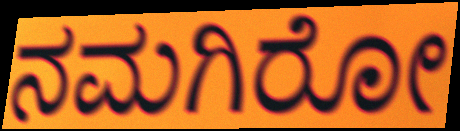
ನಮಗಿರೋ